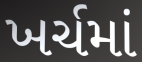
ખર્ચમાં